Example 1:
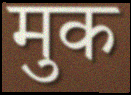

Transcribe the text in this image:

मुक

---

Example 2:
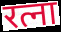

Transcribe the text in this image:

रत्ना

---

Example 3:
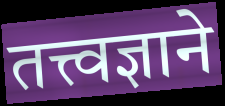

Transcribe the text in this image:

तत्त्वज्ञाने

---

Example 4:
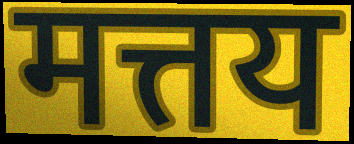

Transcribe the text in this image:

मत्तय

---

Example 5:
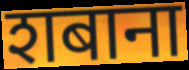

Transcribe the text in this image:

शबाना